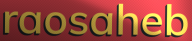
raosaheb